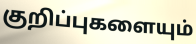
குறிப்புகளையும்